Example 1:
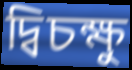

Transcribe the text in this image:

দ্বিচক্ষু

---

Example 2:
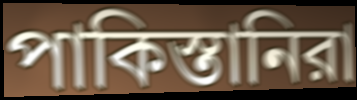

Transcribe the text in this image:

পাকিস্তানিরা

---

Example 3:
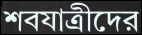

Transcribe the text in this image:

শবযাত্রীদের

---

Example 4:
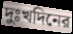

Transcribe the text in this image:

দুঃখদিনের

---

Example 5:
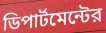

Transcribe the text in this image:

ডিপার্টমেন্টের